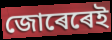
জোৰেৰেই